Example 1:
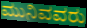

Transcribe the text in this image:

ಮುನಿವವರು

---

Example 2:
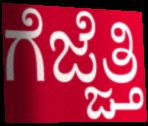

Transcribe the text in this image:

ಗೆಜ್ಜೆತ್ತಿ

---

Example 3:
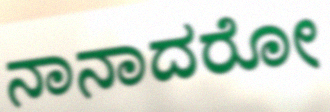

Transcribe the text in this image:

ನಾನಾದರೋ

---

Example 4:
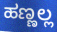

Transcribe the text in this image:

ಹಣ್ಣಲ್ಲ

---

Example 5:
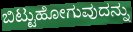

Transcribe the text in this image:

ಬಿಟ್ಟುಹೋಗುವುದನ್ನು